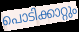
പൊടിക്കാറ്റും